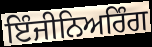
ਇੰਜੀਨਿਅਰਿੰਗ